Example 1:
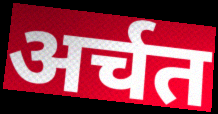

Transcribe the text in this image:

अर्चत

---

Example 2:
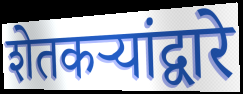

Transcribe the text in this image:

शेतकऱ्यांद्वारे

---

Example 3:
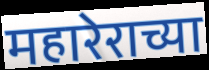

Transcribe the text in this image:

महारेराच्या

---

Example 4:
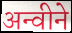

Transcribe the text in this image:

अन्वीने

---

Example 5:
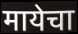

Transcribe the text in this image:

मायेचा